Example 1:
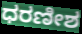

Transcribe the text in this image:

ಧರಣೀಶ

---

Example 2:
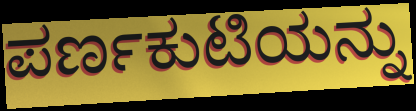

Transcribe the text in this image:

ಪರ್ಣಕುಟಿಯನ್ನು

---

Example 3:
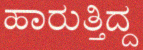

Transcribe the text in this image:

ಹಾರುತ್ತಿದ್ದ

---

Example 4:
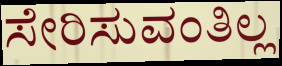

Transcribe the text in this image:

ಸೇರಿಸುವಂತಿಲ್ಲ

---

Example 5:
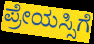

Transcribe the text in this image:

ಪ್ರೇಯಸ್ಸಿಗೆ